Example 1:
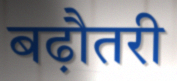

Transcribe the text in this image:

बढ़ौतरी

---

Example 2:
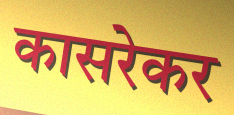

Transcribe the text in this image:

कासरेकर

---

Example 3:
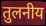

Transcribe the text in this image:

तुलनीय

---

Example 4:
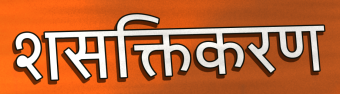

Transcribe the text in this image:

शसक्तिकरण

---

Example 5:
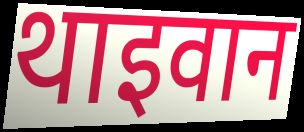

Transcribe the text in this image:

थाइवान